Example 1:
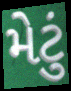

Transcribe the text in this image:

મેટું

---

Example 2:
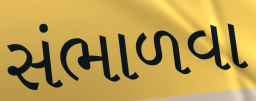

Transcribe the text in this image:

સંભાળવા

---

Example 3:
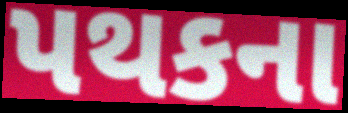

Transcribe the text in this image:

પથકના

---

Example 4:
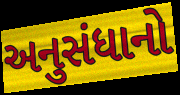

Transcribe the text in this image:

અનુસંધાનો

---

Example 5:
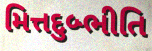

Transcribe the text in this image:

મિત્તદુબ્ભીતિ